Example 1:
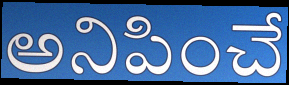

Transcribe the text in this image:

అనిపించే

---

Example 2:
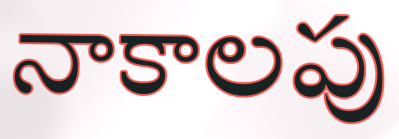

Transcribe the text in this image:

నాకాలపు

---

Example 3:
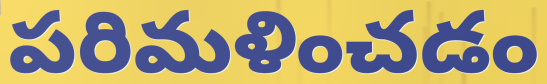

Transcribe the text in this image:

పరిమళించడం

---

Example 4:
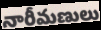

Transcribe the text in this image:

నారీమణులు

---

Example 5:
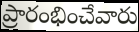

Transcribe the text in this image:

ప్రారంభించేవారు